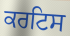
ਕਰਟਿਸ